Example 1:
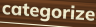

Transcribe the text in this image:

categorize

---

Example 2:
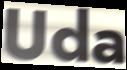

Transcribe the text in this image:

Uda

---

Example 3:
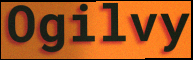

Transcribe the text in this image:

Ogilvy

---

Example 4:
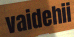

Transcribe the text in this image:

vaidehii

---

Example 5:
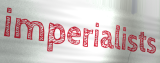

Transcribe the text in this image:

imperialists